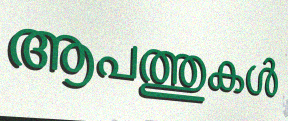
ആപത്തുകൾ